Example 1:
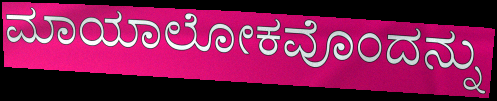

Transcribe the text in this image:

ಮಾಯಾಲೋಕವೊಂದನ್ನು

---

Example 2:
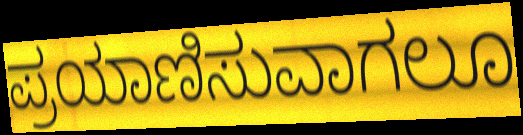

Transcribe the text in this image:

ಪ್ರಯಾಣಿಸುವಾಗಲೂ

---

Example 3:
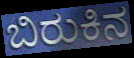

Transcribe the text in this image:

ಬಿರುಕಿನ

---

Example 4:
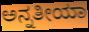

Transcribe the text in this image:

ಅನ್ನತೀಯಾ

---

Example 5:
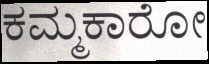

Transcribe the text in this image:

ಕಮ್ಮಕಾರೋ